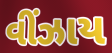
વીંઝાય